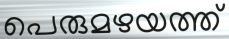
പെരുമഴയത്ത്